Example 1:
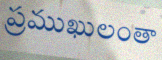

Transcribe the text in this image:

ప్రముఖులంతా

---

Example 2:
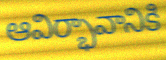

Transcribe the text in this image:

ఆవిర్భావానికి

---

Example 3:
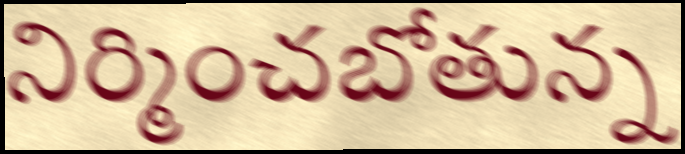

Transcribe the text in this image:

నిర్మించబోతున్న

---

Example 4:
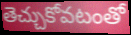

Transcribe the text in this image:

తెచ్చుకోవటంతో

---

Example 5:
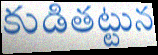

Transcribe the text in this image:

కుడితట్టున